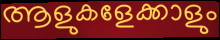
ആളുകളേക്കാളും